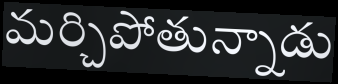
మర్చిపోతున్నాడు